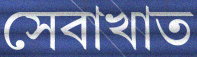
সেবাখাত